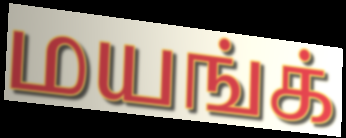
மயங்க்